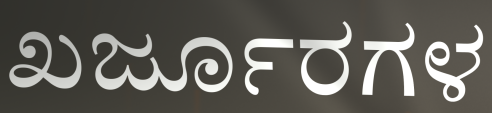
ಖರ್ಜೂರಗಳ